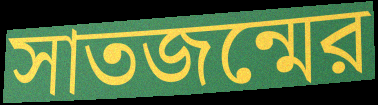
সাতজন্মের